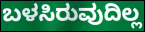
ಬಳಸಿರುವುದಿಲ್ಲ